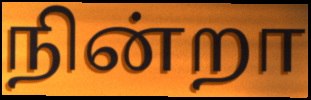
நின்றா